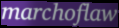
marchoflaw